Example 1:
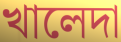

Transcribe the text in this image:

খালেদা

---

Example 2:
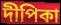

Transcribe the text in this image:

দীপিকা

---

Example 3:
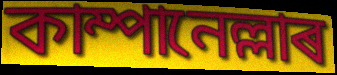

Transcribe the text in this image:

কাম্পানেল্লাৰ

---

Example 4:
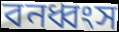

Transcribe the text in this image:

বনধ্বংস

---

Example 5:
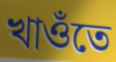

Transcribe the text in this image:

খাওঁতে